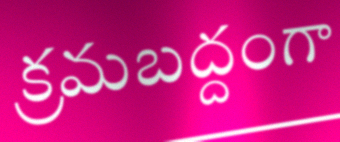
క్రమబద్దంగా